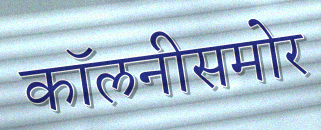
कॉलनीसमोर